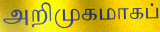
அறிமுகமாகப்